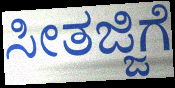
ಸೀತಜ್ಜಿಗೆ